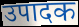
उपादक